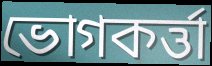
ভোগকর্ত্তা